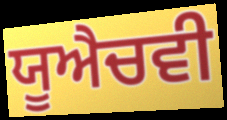
ਯੂਐਚਵੀ